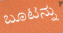
ಬೂಟನ್ನು